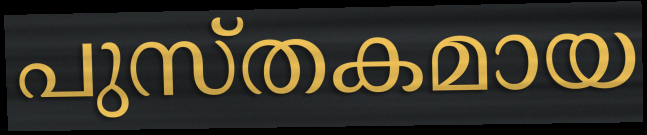
പുസ്തകമായ